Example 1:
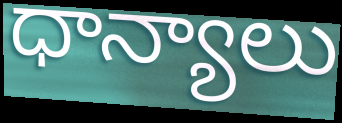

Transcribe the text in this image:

ధాన్యాలు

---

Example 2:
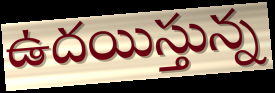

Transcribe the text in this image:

ఉదయిస్తున్న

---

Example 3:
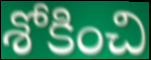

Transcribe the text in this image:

శోకించి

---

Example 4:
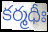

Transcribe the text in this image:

కర్మధీః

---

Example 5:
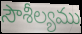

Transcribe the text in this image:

సౌశీల్యము